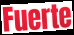
Fuerte